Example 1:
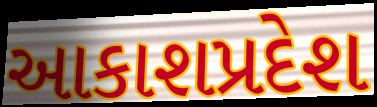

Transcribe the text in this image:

આકાશપ્રદેશ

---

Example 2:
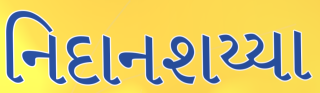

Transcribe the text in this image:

નિદાનશય્યા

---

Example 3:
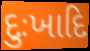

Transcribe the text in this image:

દુઃખાદિ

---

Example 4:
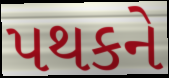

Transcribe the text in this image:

પથકને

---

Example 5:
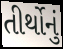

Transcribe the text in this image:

તીર્થોનું